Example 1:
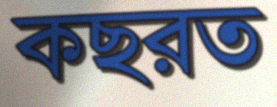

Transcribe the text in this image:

কছরত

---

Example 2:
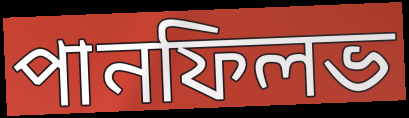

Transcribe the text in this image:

পানফিলভ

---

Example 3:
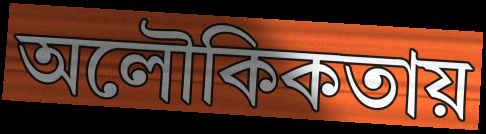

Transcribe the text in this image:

অলৌকিকতায়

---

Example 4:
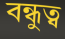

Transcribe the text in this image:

বন্ধুত্ব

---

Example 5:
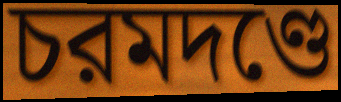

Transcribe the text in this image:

চরমদণ্ডে